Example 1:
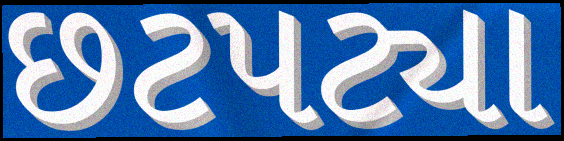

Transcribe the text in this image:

છટપટ્યા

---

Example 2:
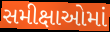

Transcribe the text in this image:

સમીક્ષાઓમાં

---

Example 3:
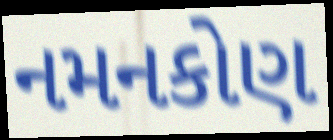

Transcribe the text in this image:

નમનકોણ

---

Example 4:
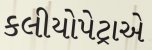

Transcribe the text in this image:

કલીયોપેટ્રાએ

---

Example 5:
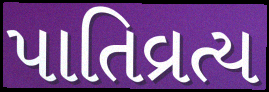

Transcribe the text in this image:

પાતિવ્રત્ય